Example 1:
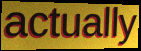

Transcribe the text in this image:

actually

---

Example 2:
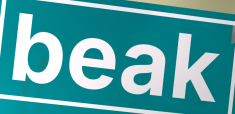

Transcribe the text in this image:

beak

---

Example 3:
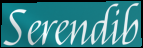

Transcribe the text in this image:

Serendib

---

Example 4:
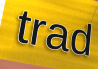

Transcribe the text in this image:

trad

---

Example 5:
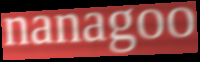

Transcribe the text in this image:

nanagoo